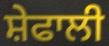
ਸ਼ੇਫਾਲੀ